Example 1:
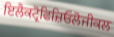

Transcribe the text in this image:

ਇਲੈਕਟ੍ਰੋਫਿਜ਼ਿਓਲੋਜੀਕਲ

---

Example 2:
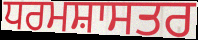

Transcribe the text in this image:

ਧਰਮਸ਼ਾਸਤਰ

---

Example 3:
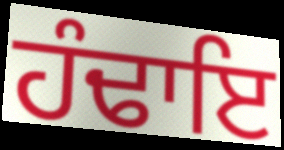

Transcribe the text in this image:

ਹੰਢਾਇ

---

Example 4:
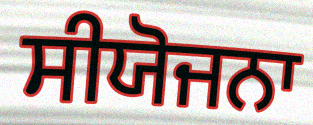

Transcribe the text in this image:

ਸੀਯੋਜਨਾ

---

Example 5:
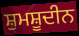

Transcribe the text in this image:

ਸ਼ੁਮਸ਼ੂਦੀਨ